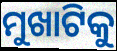
ମୁଖାଟିକୁ